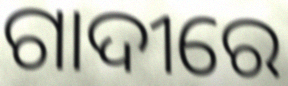
ଗାଦୀରେ